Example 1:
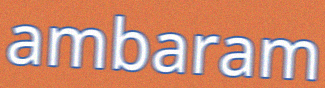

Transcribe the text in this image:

ambaram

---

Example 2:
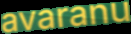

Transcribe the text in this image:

avaranu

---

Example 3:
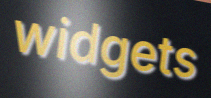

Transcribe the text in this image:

widgets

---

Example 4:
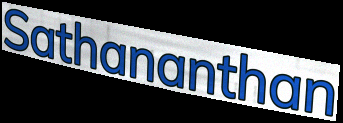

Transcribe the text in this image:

Sathananthan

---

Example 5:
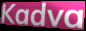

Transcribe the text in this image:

Kadva